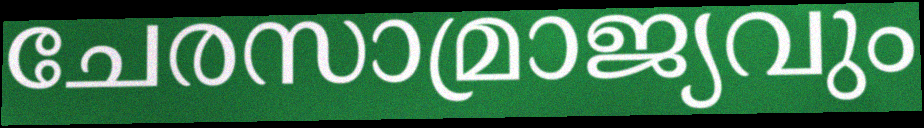
ചേരസാമ്രാജ്യവും